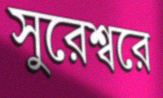
সুরেশ্বরে